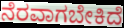
ನೆರವಾಗಬೇಕಿದೆ